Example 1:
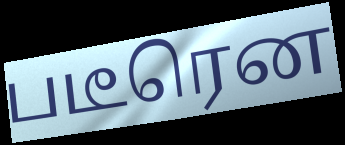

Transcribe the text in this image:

படீரென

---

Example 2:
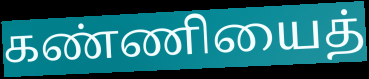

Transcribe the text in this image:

கண்ணியைத்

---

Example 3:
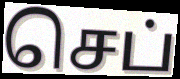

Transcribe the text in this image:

செப்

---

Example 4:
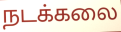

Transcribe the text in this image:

நடக்கலை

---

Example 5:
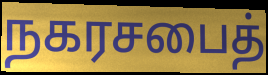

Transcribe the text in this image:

நகரசபைத்